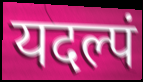
यदल्पं